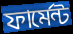
ফার্মেন্ট